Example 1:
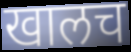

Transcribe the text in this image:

खालच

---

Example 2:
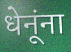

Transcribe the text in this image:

धेनूंना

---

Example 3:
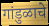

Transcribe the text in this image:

गांडुळाचे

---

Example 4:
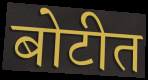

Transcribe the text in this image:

बोटीत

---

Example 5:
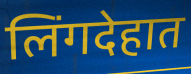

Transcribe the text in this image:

लिंगदेहात